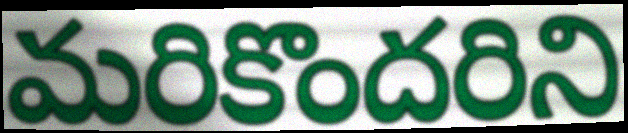
మరికొందరిని